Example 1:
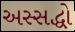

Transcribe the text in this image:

અસ્સદ્ધો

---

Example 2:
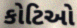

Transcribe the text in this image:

કોટિઓ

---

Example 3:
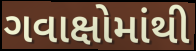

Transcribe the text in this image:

ગવાક્ષોમાંથી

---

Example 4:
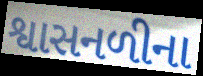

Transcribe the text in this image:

શ્વાસનળીના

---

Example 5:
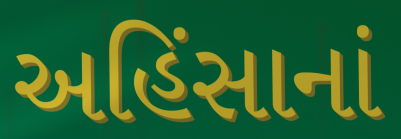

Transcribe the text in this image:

અહિંસાનાં